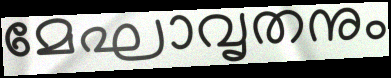
മേഘാവൃതനും